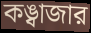
কঙ্বাজার